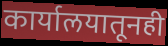
कार्यालयातूनही